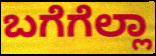
ಬಗೆಗೆಲ್ಲಾ